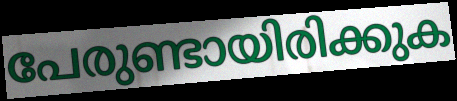
പേരുണ്ടായിരിക്കുക